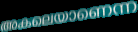
അകലെയാണെന്ന